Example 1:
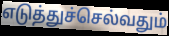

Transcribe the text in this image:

எடுத்துச்செல்வதும்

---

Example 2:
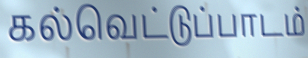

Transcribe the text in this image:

கல்வெட்டுப்பாடம்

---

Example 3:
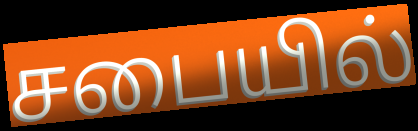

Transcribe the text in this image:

சபையில்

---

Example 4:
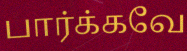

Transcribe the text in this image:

பார்க்கவே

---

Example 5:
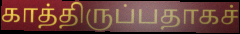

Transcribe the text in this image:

காத்திருப்பதாகச்